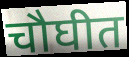
चौघीत